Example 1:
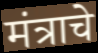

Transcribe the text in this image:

मंत्राचे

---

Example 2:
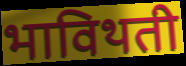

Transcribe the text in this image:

भाविथती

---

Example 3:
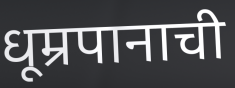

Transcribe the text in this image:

धूम्रपानाची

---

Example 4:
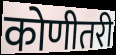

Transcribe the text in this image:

कोणीतरी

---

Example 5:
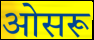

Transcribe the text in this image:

ओसरू